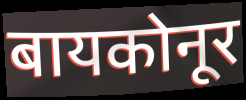
बायकोनूर